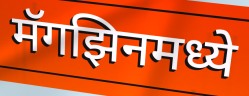
मॅगझिनमध्ये